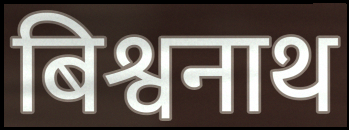
बिश्वनाथ